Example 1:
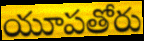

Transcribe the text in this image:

యూపతోరు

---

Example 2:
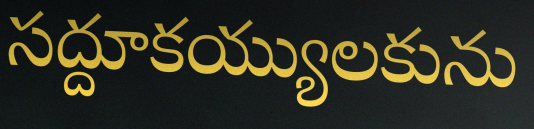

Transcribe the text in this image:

సద్దూకయ్యులకును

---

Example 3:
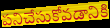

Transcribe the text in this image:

పనిచేసుకోవడానికి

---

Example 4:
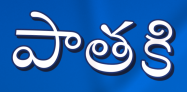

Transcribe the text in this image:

పాతకి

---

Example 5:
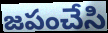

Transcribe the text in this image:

జపంచేసి